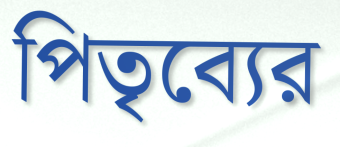
পিতৃব্যের